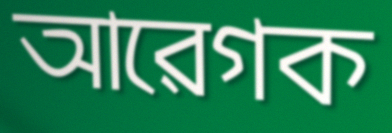
আৱেগক